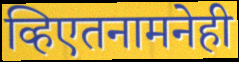
व्हिएतनामनेही